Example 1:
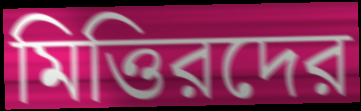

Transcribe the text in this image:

মিত্তিরদের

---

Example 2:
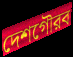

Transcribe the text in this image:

দেশগৌরব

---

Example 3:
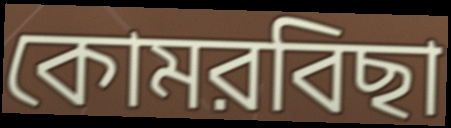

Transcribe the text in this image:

কোমরবিছা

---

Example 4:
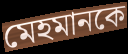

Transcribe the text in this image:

মেহমানকে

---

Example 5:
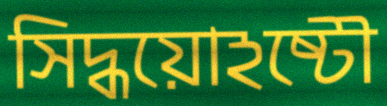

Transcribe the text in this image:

সিদ্ধয়োঽষ্টৌ